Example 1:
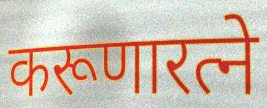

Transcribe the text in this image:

करूणारत्ने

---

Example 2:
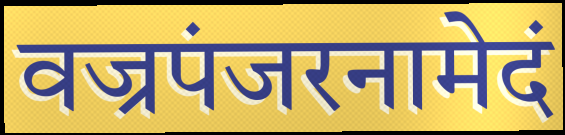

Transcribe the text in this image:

वज्रपंजरनामेदं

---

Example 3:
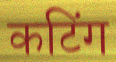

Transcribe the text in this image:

कटिंग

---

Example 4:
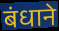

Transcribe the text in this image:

बंधाने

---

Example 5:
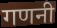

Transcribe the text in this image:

गणनी